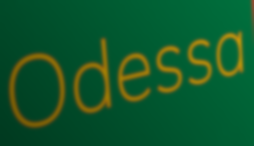
Odessa